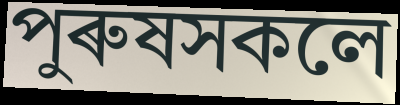
পুৰুষসকলে